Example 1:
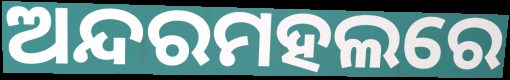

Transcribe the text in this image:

ଅନ୍ଦରମହଲରେ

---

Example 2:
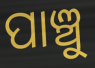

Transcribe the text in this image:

ପାଞ୍ଚୁ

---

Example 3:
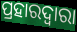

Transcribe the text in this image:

ପ୍ରହାରଦ୍ଵାରା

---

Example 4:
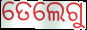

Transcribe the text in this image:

ତେଲେଗୁ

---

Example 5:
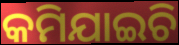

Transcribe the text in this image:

କମିଯାଇଚି